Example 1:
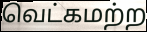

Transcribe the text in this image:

வெட்கமற்ற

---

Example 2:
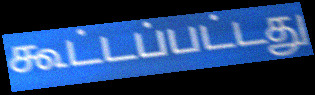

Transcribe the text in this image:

கூட்டப்பட்டது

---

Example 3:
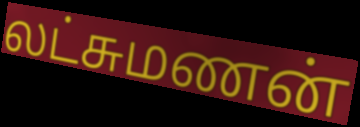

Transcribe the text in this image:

லட்சுமணன்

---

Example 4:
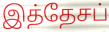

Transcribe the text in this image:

இத்தேசப்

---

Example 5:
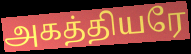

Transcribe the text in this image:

அகத்தியரே